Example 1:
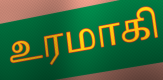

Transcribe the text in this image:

உரமாகி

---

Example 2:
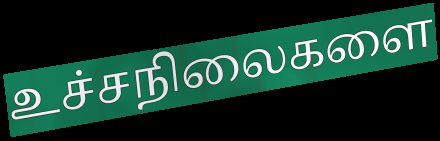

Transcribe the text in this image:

உச்சநிலைகளை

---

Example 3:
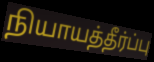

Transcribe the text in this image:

நியாயத்தீர்ப்பு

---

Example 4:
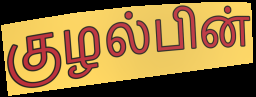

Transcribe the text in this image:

குழல்பின்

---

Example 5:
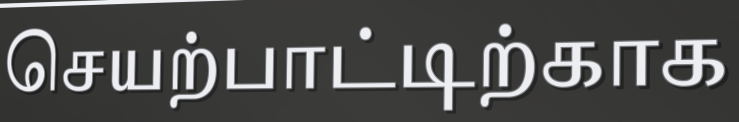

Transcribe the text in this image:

செயற்பாட்டிற்காக